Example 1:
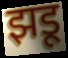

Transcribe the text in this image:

झडू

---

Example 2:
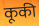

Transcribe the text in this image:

कूकी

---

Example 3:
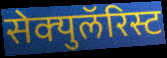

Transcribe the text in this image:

सेक्युलॅरिस्ट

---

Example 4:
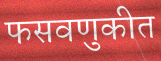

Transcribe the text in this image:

फसवणुकीत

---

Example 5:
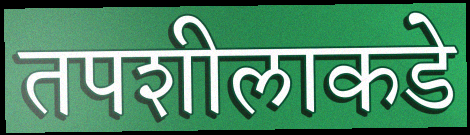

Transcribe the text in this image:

तपशीलाकडे